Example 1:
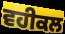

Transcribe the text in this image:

ਵਹੀਕਲ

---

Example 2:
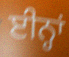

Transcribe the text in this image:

ਈਨ੍ਹਾਂ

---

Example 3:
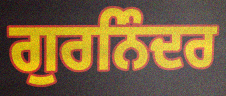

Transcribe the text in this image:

ਗੁਰਨਿੰਦਰ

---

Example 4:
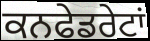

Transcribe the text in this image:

ਕਨਫੇਡਰੇਟਾਂ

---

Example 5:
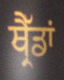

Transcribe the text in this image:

ਥ੍ਰੈੱਡਾਂ